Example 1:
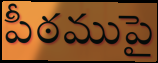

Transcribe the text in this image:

పీఠముపై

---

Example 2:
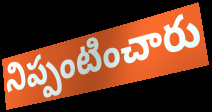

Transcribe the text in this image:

నిప్పంటించారు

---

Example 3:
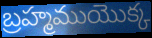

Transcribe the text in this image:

బ్రహ్మముయొక్క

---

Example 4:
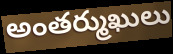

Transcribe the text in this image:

అంతర్ముఖులు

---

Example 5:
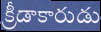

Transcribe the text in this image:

క్రీడాకారుడు